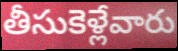
తీసుకెళ్లేవారు